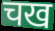
चख